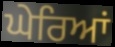
ਘੇਰਿਆਂ